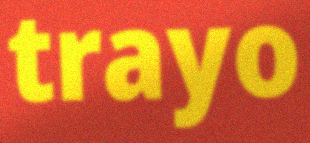
trayo